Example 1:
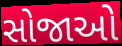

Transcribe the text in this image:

સોજાઓ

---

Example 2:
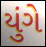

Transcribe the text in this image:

યુંગે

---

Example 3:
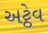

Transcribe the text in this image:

અટ્ઠેવ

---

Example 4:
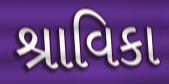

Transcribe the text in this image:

શ્રાવિકા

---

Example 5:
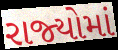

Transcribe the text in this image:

રાજ્‍યોમાં